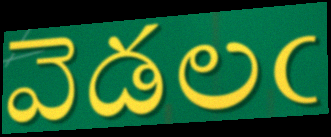
వెడలఁ